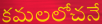
కమలలోచనే